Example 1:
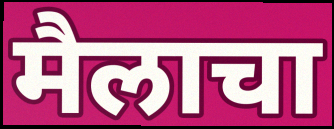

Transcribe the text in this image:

मैलाचा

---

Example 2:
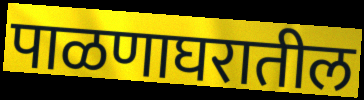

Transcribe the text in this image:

पाळणाघरातील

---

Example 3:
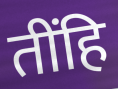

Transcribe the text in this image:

तींहि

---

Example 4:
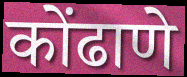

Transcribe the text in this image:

कोंढाणे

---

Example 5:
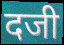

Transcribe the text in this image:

दजी